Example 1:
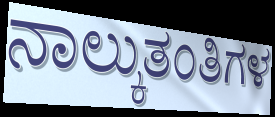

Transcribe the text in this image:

ನಾಲ್ಕುತಂತಿಗಳ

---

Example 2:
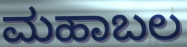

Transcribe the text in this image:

ಮಹಾಬಲ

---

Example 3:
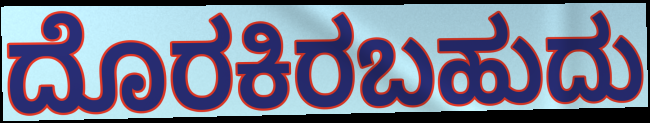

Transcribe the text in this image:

ದೊರಕಿರಬಹುದು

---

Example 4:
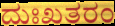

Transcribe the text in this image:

ದುಃಖತರಂ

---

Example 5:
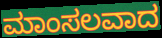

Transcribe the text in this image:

ಮಾಂಸಲವಾದ